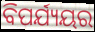
ବିପର୍ଯ୍ୟୟର